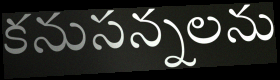
కనుసన్నలను